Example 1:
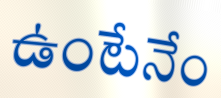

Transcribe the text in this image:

ఉంటేనేం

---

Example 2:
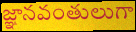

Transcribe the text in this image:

జ్ఞానవంతులుగా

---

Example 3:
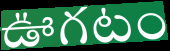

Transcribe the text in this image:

ఊగటం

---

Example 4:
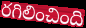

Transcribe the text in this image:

రగిలించింది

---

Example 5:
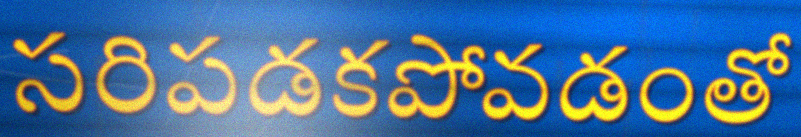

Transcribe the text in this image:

సరిపడకపోవడంతో